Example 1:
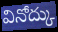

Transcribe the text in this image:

వినోద్కు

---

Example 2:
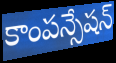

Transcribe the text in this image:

కాంపన్సేషన్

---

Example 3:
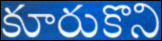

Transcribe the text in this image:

కూరుకొని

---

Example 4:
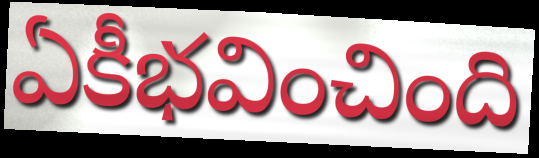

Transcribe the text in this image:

ఏకీభవించింది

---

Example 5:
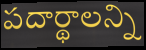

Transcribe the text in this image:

పదార్థాలన్ని